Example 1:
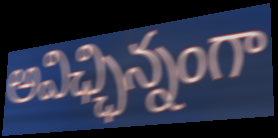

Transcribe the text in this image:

అవిఛ్ఛిన్నంగా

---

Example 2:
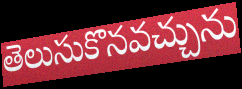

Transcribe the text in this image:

తెలుసుకొనవచ్చును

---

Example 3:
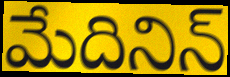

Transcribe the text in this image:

మేదినిన్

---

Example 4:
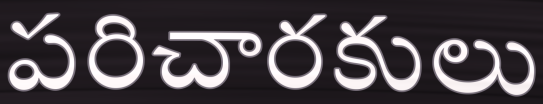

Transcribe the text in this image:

పరిచారకులు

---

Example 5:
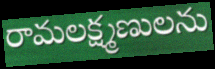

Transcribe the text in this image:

రామలక్ష్మణులను